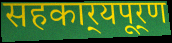
सहकार्यपूर्ण